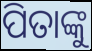
ପିତାଙ୍କୁ